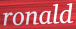
ronald